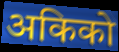
अकिको